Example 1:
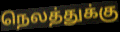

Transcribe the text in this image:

நெலத்துக்கு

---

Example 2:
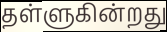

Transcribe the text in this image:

தள்ளுகின்றது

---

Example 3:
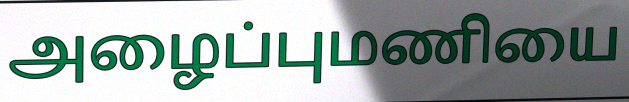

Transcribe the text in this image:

அழைப்புமணியை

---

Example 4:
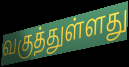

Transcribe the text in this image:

வகுத்துள்ளது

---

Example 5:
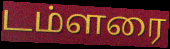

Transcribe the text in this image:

டம்ளரை